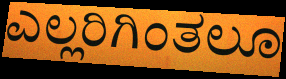
ಎಲ್ಲರಿಗಿಂತಲೂ